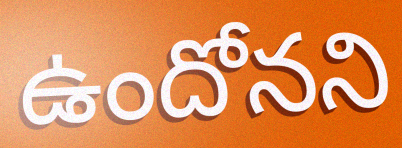
ఉందోనని